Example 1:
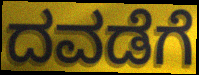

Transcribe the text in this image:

ದವಡೆಗೆ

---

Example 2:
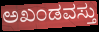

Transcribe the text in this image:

ಅಖಂಡವಸ್ತು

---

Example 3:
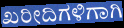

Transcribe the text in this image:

ಖರೀದಿಗಳಿಗಾಗಿ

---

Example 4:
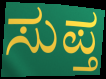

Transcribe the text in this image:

ಸುಪ್ತ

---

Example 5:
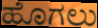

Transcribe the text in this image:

ಹೊಗಲು